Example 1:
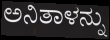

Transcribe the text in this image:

ಅನಿತಾಳನ್ನು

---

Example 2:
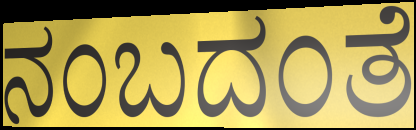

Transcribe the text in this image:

ನಂಬದಂತೆ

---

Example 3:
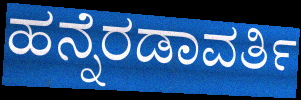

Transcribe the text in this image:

ಹನ್ನೆರಡಾವರ್ತಿ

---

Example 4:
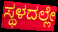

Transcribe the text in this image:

ಸ್ಥಳದಲ್ಲೇ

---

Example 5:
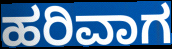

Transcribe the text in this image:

ಹರಿವಾಗ